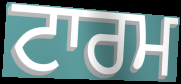
ਟਾਰਮ